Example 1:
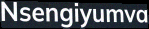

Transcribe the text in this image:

Nsengiyumva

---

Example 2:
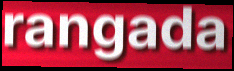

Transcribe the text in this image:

rangada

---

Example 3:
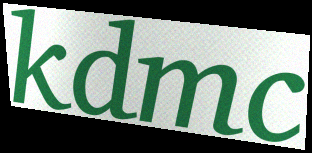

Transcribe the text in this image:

kdmc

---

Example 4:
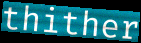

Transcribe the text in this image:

thither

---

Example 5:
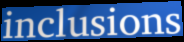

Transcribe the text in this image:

inclusions